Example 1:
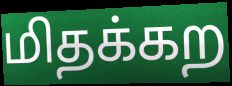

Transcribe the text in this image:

மிதக்கற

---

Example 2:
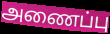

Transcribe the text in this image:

அணைப்பு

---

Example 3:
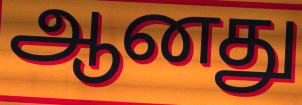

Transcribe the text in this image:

ஆனது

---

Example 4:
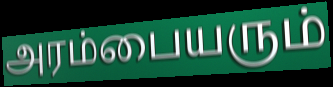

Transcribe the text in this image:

அரம்பையரும்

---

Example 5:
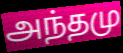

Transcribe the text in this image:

அந்தமு